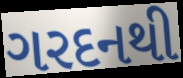
ગરદનથી